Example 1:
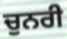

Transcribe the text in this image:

ਚੁਨਰੀ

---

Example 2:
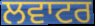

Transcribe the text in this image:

ਲਵਾਟਰ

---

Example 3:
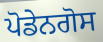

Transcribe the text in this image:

ਪੋਡੇਨਗੋਸ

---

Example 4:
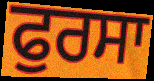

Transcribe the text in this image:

ਫੁਰਸਾ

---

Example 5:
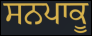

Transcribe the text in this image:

ਸਨਪਾਕੂ